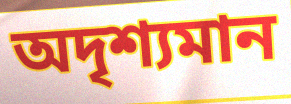
অদৃশ্যমান